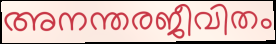
അനന്തരജീവിതം